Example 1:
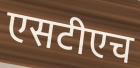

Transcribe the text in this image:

एसटीएच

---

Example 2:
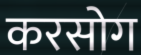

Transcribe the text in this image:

करसोग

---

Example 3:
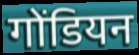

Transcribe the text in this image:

गोंडियन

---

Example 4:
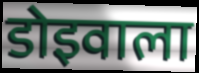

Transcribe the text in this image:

डोइवाला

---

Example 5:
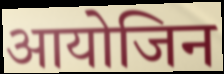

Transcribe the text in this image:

आयोजिन